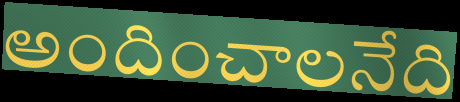
అందించాలనేది